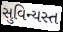
સુવિન્યસ્ત